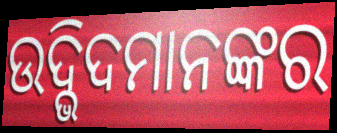
ଉଦ୍ଭିଦମାନଙ୍କର